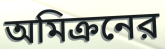
অমিক্রনের